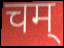
चम्